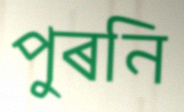
পুৰনি